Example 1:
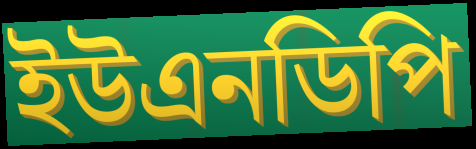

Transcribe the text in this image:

ইউএনডিপি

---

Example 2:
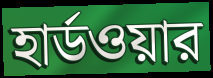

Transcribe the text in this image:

হার্ডওয়ার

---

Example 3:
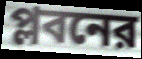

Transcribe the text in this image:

প্লবনের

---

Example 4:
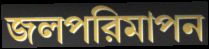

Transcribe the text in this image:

জলপরিমাপন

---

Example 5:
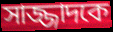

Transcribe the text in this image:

সাজ্জাদকে